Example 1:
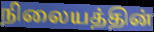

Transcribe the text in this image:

நிலையத்தின்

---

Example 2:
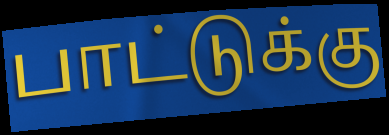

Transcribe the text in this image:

பாட்டுக்கு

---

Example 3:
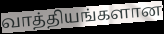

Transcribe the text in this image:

வாத்தியங்களான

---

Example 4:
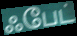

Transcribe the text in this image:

ஃபேட்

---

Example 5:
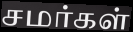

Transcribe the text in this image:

சமர்கள்